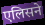
एलिसने